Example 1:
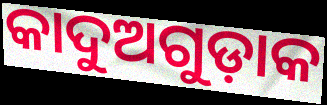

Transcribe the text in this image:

କାଦୁଅଗୁଡ଼ାକ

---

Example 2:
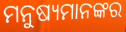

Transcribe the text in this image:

ମନୁଷ୍ୟମାନଙ୍କର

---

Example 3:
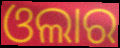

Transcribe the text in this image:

ଓଲାର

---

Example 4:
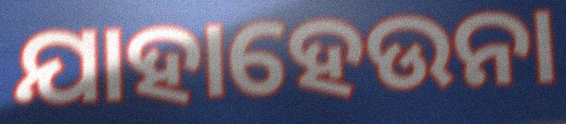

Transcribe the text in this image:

ଯାହାହେଉନା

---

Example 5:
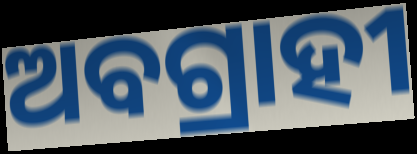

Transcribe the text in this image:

ଅବଗ୍ରାହୀ